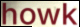
howk